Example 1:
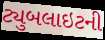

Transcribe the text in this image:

ટ્યુબલાઇટની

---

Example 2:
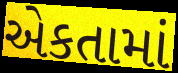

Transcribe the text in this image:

એકતામાં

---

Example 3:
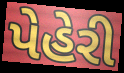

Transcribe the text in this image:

પેહેરી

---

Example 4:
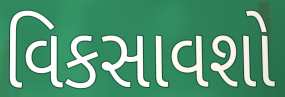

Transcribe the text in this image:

વિકસાવશો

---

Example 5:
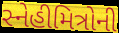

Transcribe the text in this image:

સ્નેહીમિત્રોની